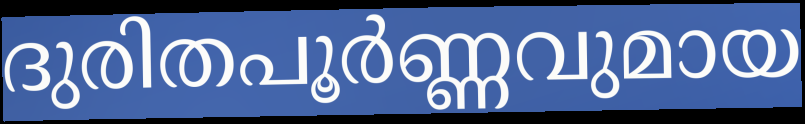
ദുരിതപൂർണ്ണവുമായ